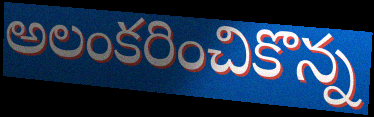
అలంకరించికొన్న